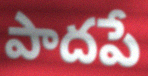
పాదపే